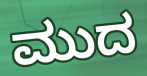
ಮುದ